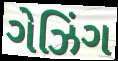
ગેઝિંગ